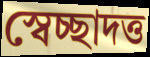
স্বেচ্ছাদত্ত